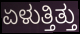
ಏಳುತ್ತಿತ್ತು